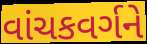
વાંચકવર્ગને